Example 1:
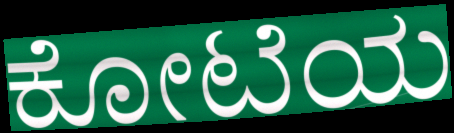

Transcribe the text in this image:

ಕೋಟೆಯ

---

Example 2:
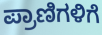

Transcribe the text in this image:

ಪ್ರಾಣಿಗಳಿಗೆ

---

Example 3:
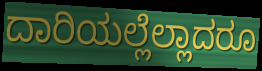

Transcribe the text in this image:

ದಾರಿಯಲ್ಲೆಲ್ಲಾದರೂ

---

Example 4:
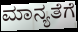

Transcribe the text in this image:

ಮಾನ್ಯತೆಗೆ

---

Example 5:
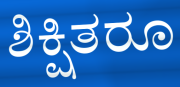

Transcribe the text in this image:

ಶಿಕ್ಷಿತರೂ